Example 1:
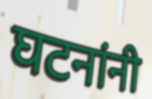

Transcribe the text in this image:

घटनांनी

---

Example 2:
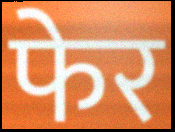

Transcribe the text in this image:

फेर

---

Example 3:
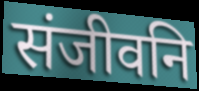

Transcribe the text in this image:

संजीवनि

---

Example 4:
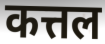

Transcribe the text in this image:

कत्तल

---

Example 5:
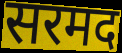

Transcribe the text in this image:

सरमद